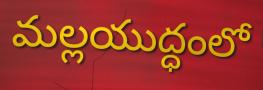
మల్లయుద్ధంలో